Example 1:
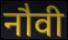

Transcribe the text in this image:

नौवी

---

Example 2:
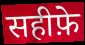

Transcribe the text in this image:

सहीफ़े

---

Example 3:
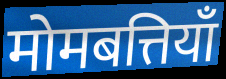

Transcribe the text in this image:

मोमबत्तियाँ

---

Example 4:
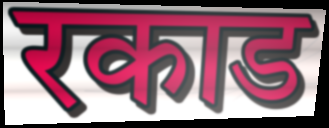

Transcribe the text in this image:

रकाड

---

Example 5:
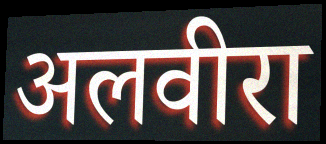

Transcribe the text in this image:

अलवीरा